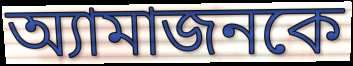
অ্যামাজনকে